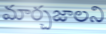
మార్చజాలని